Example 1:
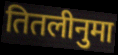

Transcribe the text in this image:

तितलीनुमा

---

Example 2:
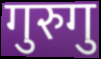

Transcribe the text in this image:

गुरुगु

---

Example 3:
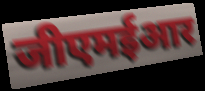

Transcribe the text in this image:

जीएमईआर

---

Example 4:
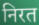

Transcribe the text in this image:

निरत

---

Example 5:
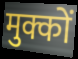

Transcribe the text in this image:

मुक्कों